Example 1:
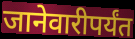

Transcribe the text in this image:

जानेवारीपर्यंत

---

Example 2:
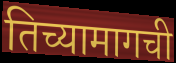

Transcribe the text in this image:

तिच्यामागची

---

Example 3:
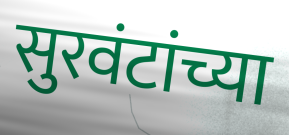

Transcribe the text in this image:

सुरवंटांच्या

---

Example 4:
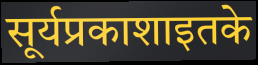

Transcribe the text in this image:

सूर्यप्रकाशाइतके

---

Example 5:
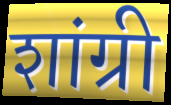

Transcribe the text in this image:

शांग्री